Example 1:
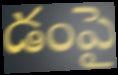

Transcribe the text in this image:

డంపై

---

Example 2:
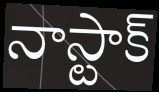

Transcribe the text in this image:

నాస్టాక్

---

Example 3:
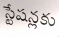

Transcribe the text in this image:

స్టేషన్లకు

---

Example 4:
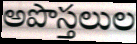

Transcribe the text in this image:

అపొస్తలుల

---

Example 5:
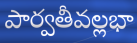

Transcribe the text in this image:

పార్వతీవల్లభా